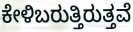
ಕೇಳಿಬರುತ್ತಿರುತ್ತವೆ